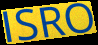
ISRO